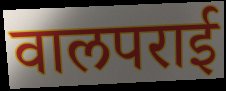
वालपराई